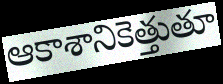
ఆకాశానికెత్తుతూ